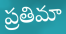
ప్రతిమా